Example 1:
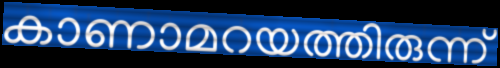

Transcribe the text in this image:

കാണാമറയത്തിരുന്ന്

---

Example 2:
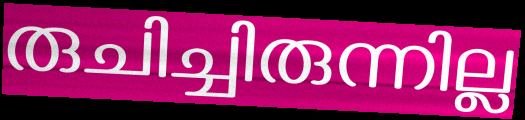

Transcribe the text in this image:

രുചിച്ചിരുന്നില്ല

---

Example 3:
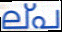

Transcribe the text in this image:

ല്‌പ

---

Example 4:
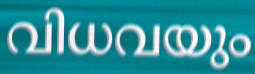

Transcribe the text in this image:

വിധവയും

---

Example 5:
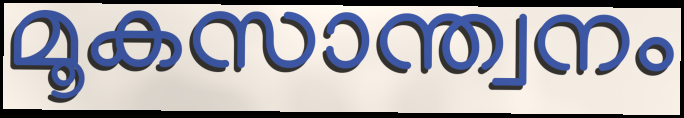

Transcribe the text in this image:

മൂകസാന്ത്വനം